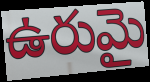
ఉరుమై